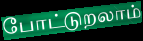
போட்டுறலாம்